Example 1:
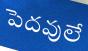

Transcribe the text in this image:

పెదవులే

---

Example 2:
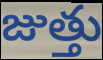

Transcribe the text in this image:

జుత్తు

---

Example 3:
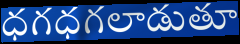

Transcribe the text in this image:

ధగధగలాడుతూ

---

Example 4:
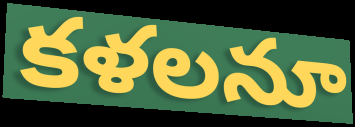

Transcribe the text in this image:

కళలనూ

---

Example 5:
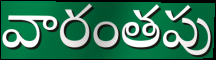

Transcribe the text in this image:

వారంతపు